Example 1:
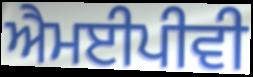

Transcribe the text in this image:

ਐਮਈਪੀਵੀ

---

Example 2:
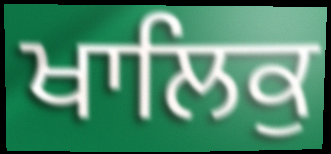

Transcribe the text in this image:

ਖਾਲਿਕੁ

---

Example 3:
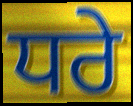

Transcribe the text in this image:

ਧਰੇ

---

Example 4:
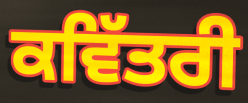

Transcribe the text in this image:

ਕਵਿੱਤਰੀ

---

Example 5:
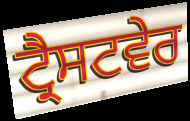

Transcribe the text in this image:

ਟ੍ਰੈਸਟਵੇਰ